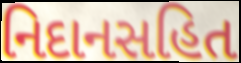
નિદાનસહિત